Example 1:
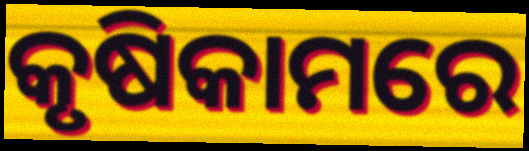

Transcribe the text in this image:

କୃଷିକାମରେ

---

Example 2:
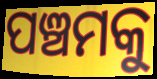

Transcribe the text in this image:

ପଞ୍ଚମକୁ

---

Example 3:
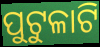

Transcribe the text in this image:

ପୁଟୁଳାଟି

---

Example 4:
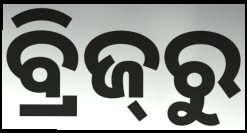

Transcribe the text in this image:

ବ୍ରିଜ୍‌ରୁ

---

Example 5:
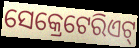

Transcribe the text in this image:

ସେକ୍ରେଟେରିଏଟ୍